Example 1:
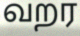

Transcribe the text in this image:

வறர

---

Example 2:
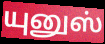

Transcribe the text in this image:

யுனுஸ்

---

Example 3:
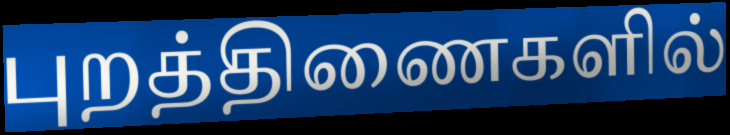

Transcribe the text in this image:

புறத்திணைகளில்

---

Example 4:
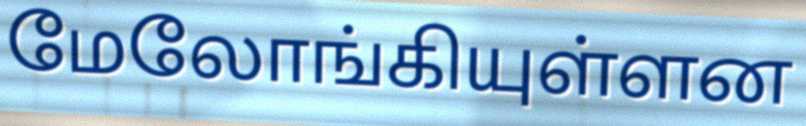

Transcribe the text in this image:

மேலோங்கியுள்ளன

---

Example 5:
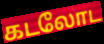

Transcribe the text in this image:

கடலோட